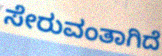
ಸೇರುವಂತಾಗಿದೆ